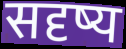
सदृष्य